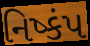
નિષ્કંપ